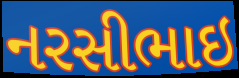
નરસીભાઇ